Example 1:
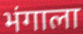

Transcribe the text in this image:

भंगाला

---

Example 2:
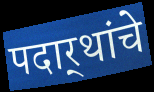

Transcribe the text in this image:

पदार्थांचे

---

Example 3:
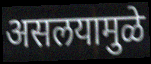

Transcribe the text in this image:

असलयामुळे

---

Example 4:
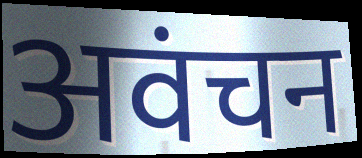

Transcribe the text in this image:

अवंचन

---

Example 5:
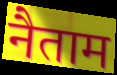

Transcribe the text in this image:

नैताम